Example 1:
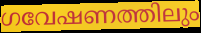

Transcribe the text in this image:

ഗവേഷണത്തിലും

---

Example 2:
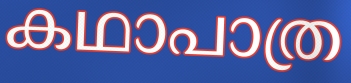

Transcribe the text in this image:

കഥാപാത്ര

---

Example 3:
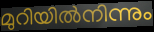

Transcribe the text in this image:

മുറിയിൽനിന്നും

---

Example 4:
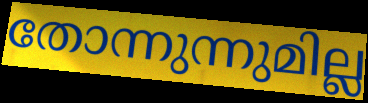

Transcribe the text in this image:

തോന്നുന്നുമില്ല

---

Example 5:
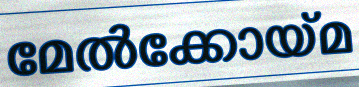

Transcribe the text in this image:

മേൽക്കോയ്മ